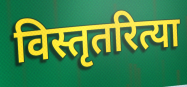
विस्तृतरित्या